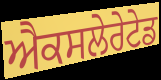
ਐਕਸਲੇਰੇਟੇਡ